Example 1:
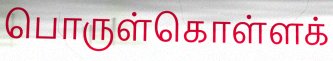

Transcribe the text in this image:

பொருள்கொள்ளக்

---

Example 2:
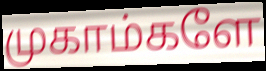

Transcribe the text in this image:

முகாம்களே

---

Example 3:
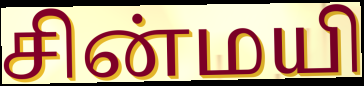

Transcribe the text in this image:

சின்மயி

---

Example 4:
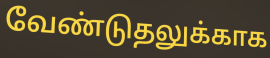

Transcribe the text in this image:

வேண்டுதலுக்காக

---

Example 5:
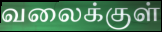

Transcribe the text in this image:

வலைக்குள்